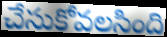
చేసుకోవలసింది